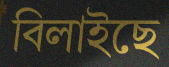
বিলাইছে